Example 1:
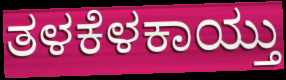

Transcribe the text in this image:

ತಳಕೆಳಕಾಯ್ತು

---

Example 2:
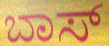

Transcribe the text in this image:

ಬಾಸ್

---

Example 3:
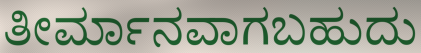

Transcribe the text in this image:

ತೀರ್ಮಾನವಾಗಬಹುದು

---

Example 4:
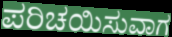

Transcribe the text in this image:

ಪರಿಚಯಿಸುವಾಗ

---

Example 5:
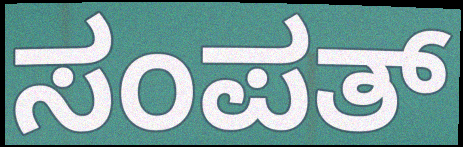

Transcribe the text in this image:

ಸಂಪತ್